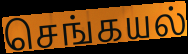
செங்கயல்